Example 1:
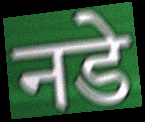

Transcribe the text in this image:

नडे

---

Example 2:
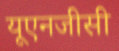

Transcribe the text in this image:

यूएनजीसी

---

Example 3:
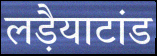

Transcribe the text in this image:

लड़ैयाटांड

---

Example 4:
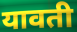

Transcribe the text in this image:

यावती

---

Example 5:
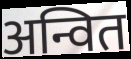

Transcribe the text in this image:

अन्वित